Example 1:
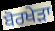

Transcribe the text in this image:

ਬੋਰਖੇੜਾ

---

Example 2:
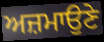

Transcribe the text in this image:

ਅਜ਼ਮਾਉਣੇ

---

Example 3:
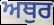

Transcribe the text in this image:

ਅਥੁਰ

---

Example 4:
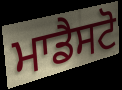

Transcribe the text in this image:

ਮਾਡੈਸਟੋ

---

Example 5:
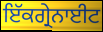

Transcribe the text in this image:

ਇੱਕਗ੍ਰੇਨਾਈਟ